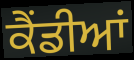
ਕੈਂਡੀਆਂ